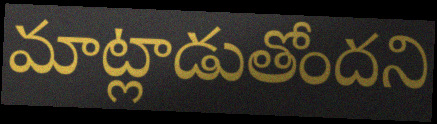
మాట్లాడుతోందని